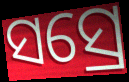
ସସ୍ରେ